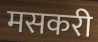
मसकरी